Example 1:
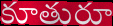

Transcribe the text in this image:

కూతురూ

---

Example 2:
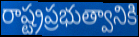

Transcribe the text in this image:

రాష్ట్రప్రభుత్వానికి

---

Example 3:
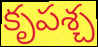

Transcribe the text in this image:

కృపశ్చ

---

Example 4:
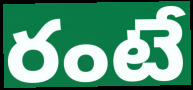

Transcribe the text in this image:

రంటే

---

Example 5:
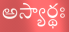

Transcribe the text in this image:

అస్యార్థః